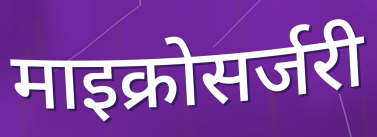
माइक्रोसर्जरी